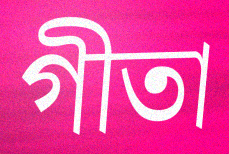
গীতা